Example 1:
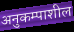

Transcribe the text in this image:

अनुकम्पाशील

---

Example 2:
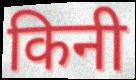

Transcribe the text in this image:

किनी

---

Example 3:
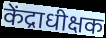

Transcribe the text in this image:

केंद्राधीक्षक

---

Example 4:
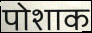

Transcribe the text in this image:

पोशाक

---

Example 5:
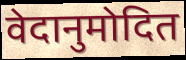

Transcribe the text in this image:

वेदानुमोदित